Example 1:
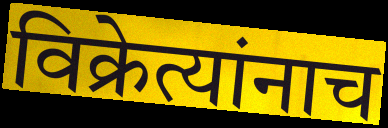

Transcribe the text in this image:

विक्रेत्यांनाच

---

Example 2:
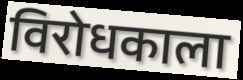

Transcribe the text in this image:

विरोधकाला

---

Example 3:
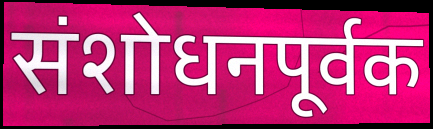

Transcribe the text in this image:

संशोधनपूर्वक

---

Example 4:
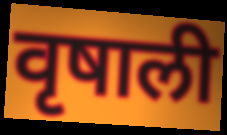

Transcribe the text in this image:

वृषाली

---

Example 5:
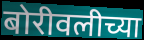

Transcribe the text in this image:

बोरीवलीच्या